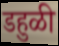
डहुळी